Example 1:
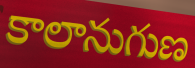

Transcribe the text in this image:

కాలానుగుణ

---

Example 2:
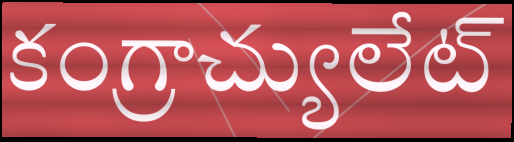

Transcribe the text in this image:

కంగ్రాచ్యులేట్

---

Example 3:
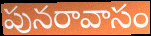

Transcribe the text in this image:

పునరావాసం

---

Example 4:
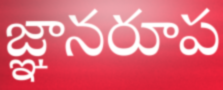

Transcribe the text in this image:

జ్ఞానరూప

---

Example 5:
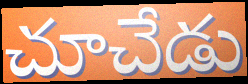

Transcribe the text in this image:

చూచేడు